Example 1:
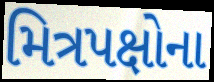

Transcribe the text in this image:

મિત્રપક્ષોના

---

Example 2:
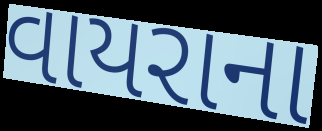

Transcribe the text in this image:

વાયરાના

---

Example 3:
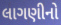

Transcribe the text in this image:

લાગણીનો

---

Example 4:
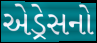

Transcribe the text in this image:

એડ્રેસનો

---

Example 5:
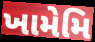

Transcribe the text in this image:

ખામેમિ